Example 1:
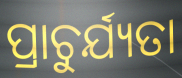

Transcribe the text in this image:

ପ୍ରାଚୁର୍ଯ୍ୟତା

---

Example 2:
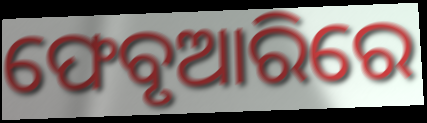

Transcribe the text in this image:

ଫେବୃଆରିରେ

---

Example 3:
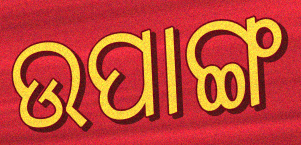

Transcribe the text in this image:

ଉପାଙ୍ଗ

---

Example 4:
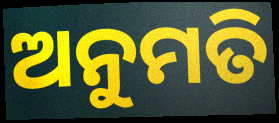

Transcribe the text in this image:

ଅନୁମତି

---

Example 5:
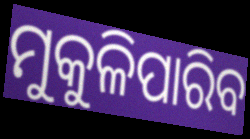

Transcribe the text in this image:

ମୁକୁଳିପାରିବ